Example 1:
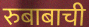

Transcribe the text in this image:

रुबाबाची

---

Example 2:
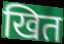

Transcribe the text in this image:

खित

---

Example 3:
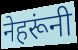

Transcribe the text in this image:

नेहरूंनी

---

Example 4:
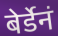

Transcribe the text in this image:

बेर्डेनं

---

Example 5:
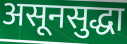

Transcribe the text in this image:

असूनसुद्धा